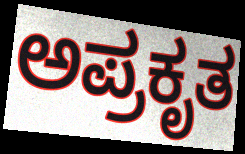
ಅಪ್ರಕೃತ